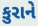
કુરાને